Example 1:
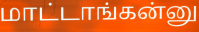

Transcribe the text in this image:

மாட்டாங்கன்னு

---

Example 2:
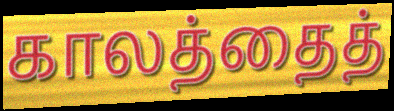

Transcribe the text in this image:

காலத்தைத்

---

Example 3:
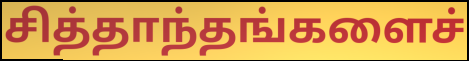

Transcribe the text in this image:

சித்தாந்தங்களைச்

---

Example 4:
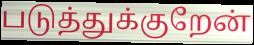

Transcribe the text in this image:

படுத்துக்குறேன்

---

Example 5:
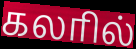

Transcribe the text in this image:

கலரில்